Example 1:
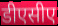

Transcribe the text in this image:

डीएसीए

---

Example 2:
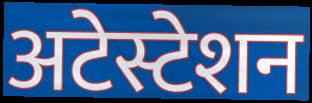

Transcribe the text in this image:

अटेस्टेशन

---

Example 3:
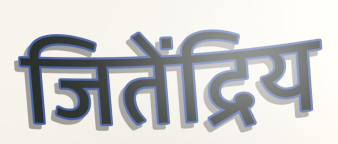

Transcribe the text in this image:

जितेंद्रिय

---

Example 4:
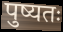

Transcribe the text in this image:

पुष्यतः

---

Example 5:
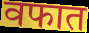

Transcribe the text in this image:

वफात